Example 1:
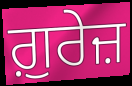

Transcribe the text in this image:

ਗ਼ੁਰੇਜ਼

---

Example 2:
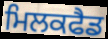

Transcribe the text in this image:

ਮਿਲਕਫੈਡ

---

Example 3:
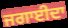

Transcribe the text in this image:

ਜਗਾਈਦਾ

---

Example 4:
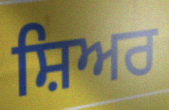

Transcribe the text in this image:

ਸ਼ਿਅਰ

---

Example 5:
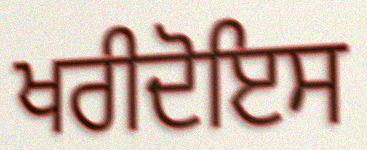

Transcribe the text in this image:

ਖਰੀਦੋਇਸ